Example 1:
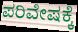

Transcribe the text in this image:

ಪರಿವೇಷಕ್ಕೆ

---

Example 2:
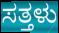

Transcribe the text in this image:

ಸತ್ತಳು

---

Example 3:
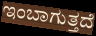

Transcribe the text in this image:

ಇಂಬಾಗುತ್ತದೆ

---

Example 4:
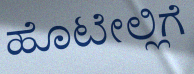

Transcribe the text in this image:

ಹೊಟೇಲ್ಲಿಗೆ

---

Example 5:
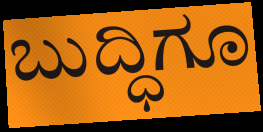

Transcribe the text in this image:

ಬುದ್ಧಿಗೂ